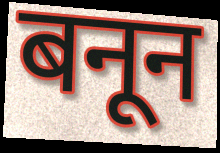
बनून